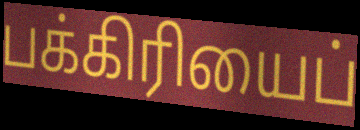
பக்கிரியைப்